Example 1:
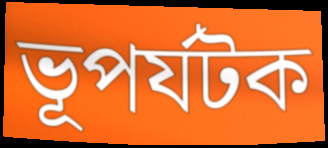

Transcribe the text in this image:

ভূপর্যটক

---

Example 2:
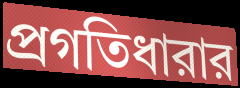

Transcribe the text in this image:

প্রগতিধারার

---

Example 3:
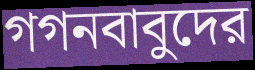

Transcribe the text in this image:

গগনবাবুদের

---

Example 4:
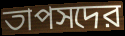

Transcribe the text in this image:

তাপসদের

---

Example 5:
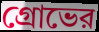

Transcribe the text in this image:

গ্রোভের